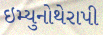
ઇમ્યુનોથેરાપી